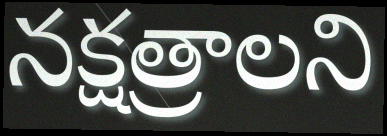
నక్షత్రాలని